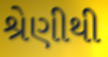
શ્રેણીથી